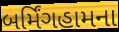
બર્મિંગહામના